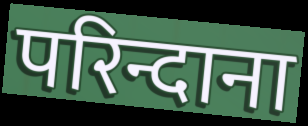
परिन्दाना